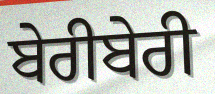
ਬੇਰੀਬੇਰੀ